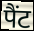
पैंट